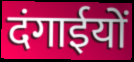
दंगाईयों